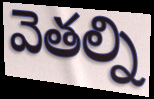
వెతల్ని